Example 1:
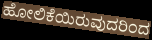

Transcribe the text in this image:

ಹೋಲಿಕೆಯಿರುವುದರಿಂದ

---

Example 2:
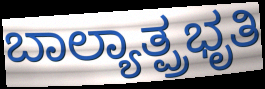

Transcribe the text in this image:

ಬಾಲ್ಯಾತ್ಪ್ರಭೃತಿ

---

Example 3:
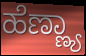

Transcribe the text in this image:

ಹೆಣ್ಣ್ಯಾ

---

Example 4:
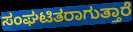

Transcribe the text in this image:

ಸಂಘಟಿತರಾಗುತ್ತಾರೆ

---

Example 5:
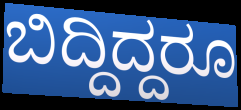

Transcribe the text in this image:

ಬಿದ್ದಿದ್ದರೂ